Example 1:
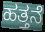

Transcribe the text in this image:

ಹತ್ತನೆ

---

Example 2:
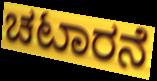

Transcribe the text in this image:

ಚಟಾರನೆ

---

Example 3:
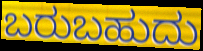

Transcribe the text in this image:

ಬರುಬಹುದು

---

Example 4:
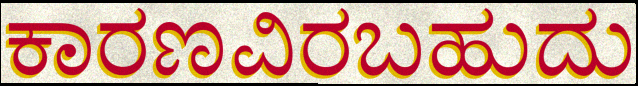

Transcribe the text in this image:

ಕಾರಣವಿರಬಹುದು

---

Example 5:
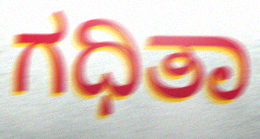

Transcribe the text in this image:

ಗಧಿತಾ